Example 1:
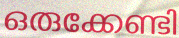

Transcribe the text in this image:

ഒരുക്കേണ്ടി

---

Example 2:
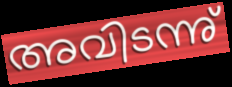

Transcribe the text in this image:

അവിടന്നു്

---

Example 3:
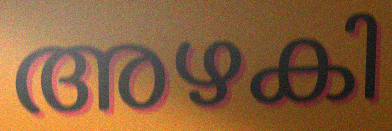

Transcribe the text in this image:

അഴകി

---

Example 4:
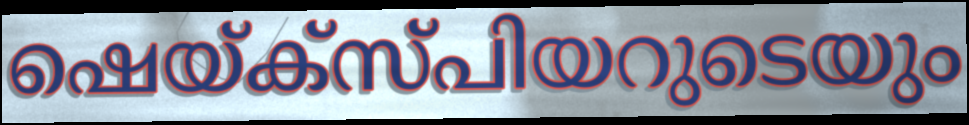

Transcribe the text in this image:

ഷെയ്ക്സ്പിയറുടെയും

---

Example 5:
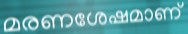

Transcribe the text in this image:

മരണശേഷമാണ്